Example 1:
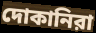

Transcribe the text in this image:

দোকানিরা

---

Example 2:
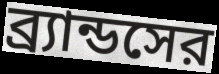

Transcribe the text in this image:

ব্র্যান্ডসের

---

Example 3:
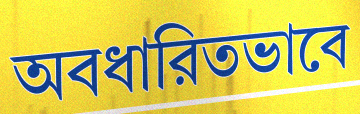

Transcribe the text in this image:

অবধারিতভাবে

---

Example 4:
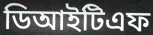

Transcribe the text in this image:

ডিআইটিএফ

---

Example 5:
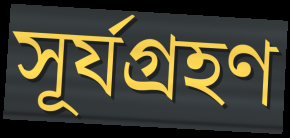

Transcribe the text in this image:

সূর্যগ্রহণ